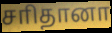
சரிதானா